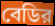
বেডির